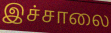
இச்சாலை